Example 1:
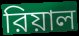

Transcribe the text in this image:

রিয়াল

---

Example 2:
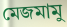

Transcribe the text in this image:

মেজমামু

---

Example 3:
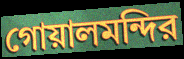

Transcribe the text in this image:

গোয়ালমন্দির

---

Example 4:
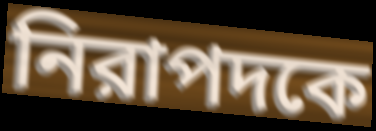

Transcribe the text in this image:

নিরাপদকে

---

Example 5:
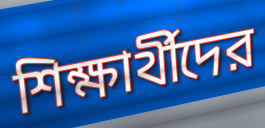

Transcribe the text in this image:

শিক্ষার্থীদের